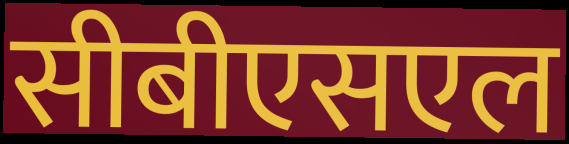
सीबीएसएल